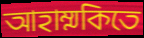
আহাম্মকিতে